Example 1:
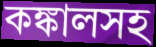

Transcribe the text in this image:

কঙ্কালসহ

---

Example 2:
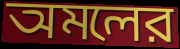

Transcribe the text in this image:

অমলের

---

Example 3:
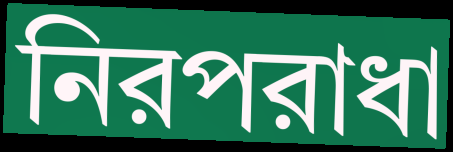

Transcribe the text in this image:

নিরপরাধা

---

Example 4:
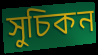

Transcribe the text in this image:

সুচিকন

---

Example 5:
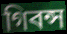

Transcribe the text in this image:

গিবন্স